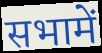
सभामें